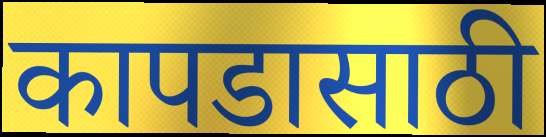
कापडासाठी